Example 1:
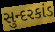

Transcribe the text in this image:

સુન્દરકાંડ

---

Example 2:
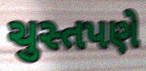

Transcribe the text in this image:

ચુસ્તપણે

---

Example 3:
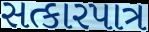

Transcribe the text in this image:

સત્કારપાત્ર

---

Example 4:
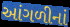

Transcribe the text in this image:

આંગળીનાં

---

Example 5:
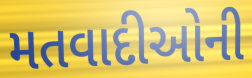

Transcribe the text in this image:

મતવાદીઓની